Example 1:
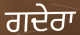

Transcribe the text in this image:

ਗਦੇਰਾ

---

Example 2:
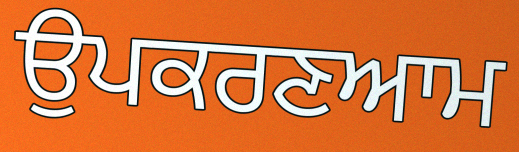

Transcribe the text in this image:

ਉਪਕਰਣਆਮ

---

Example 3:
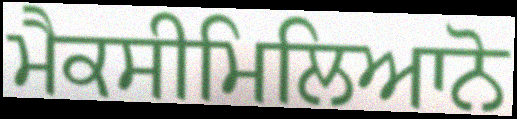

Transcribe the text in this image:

ਮੈਕਸੀਮਿਲਿਆਨੋ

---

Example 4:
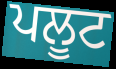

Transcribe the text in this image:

ਪਲੂਟ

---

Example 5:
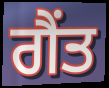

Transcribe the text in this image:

ਗੈਂਤ